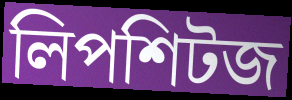
লিপশিটজ